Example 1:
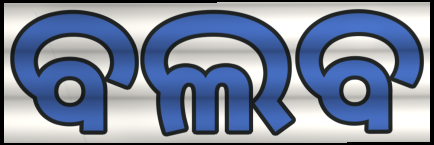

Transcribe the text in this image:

ବଲବ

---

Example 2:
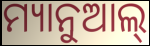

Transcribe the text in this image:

ମ୍ୟାନୁଆଲ୍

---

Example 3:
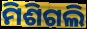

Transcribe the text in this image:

ମିଶିଗଲି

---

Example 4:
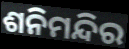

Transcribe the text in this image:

ଶନିମନ୍ଦିର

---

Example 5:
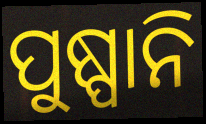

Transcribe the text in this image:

ପୁଷ୍ପାନି